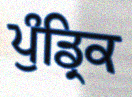
ਪੁੰਡ੍ਰਿਕ